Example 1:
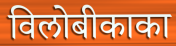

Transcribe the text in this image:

विलोबीकाका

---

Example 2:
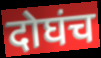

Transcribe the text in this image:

दोघंच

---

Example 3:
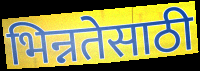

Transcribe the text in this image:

भिन्नतेसाठी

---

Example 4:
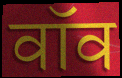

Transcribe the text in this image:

वॉव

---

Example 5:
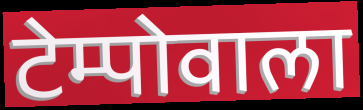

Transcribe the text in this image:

टेम्पोवाला